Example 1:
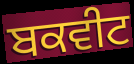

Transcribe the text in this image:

ਬਕਵੀਟ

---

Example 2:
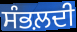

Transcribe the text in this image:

ਸੰਭਲ਼ਦੀ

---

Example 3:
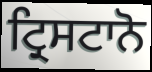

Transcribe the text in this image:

ਟ੍ਰਿਸਟਾਨੋ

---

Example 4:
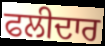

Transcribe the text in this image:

ਫਲੀਦਾਰ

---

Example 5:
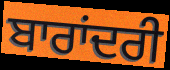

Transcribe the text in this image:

ਬਾਰਾਂਦਰੀ